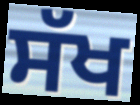
ਸੱਖ